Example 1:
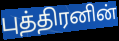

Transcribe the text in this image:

புத்திரனின்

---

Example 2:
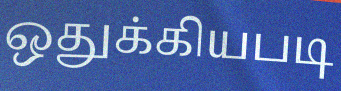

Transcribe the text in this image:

ஒதுக்கியபடி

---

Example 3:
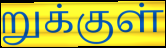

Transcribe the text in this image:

றுக்குள்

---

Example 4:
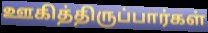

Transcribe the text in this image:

ஊகித்திருப்பார்கள்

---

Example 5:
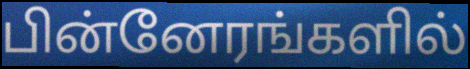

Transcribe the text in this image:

பின்னேரங்களில்